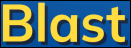
Blast